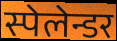
स्पेलेन्डर